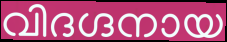
വിദഗ്ദനായ